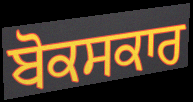
ਬੋਕਸਕਾਰ